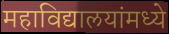
महाविद्यालयांमध्ये